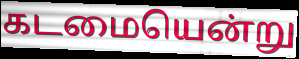
கடமையென்று